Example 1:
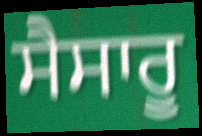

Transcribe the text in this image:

ਸੈਸਾਰੂ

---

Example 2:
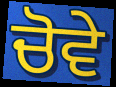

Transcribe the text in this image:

ਚੋਵੇ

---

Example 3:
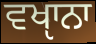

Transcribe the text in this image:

ਵਖੵਾਨਾ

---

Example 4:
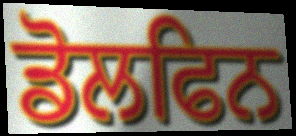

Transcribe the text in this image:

ਡੋਲਫਿਨ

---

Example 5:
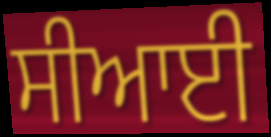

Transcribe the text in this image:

ਸੀਆਈ